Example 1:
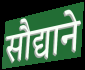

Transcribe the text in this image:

सौद्याने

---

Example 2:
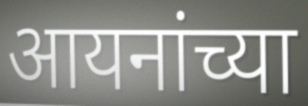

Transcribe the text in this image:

आयनांच्या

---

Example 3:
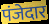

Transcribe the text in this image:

पंजेदार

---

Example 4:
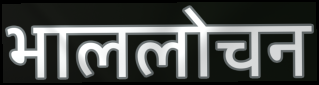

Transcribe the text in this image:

भाललोचन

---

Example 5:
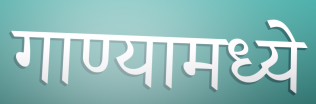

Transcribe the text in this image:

गाण्यामध्ये